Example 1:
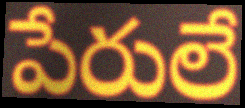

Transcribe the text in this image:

పేరులే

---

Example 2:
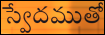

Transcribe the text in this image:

స్వేదముతో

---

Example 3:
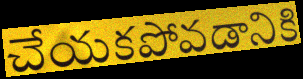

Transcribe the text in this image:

చేయకపోవడానికి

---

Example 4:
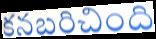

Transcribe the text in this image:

కనబరిచింది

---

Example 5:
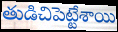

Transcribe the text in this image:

తుడిచిపెట్టేశాయి